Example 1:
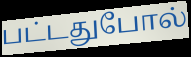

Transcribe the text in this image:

பட்டதுபோல்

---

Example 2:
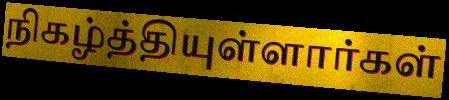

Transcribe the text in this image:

நிகழ்த்தியுள்ளார்கள்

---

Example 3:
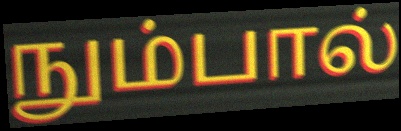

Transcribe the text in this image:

நும்பால்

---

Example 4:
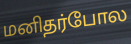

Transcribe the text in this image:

மனிதர்போல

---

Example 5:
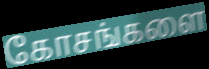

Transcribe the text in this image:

கோசங்களை